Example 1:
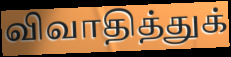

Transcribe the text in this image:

விவாதித்துக்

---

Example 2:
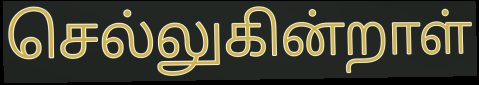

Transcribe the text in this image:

செல்லுகின்றாள்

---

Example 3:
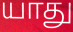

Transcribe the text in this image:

யாது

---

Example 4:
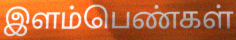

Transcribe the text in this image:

இளம்பெண்கள்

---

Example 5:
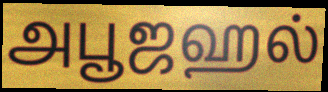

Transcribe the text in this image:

அபூஜஹல்